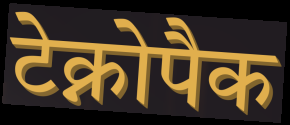
टेक्नोपैक